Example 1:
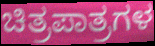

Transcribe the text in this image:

ಚಿತ್ರಪಾತ್ರಗಳ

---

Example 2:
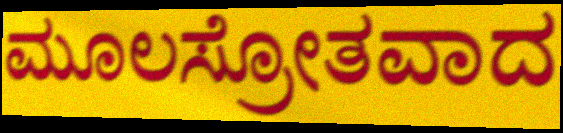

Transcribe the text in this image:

ಮೂಲಸ್ರೋತವಾದ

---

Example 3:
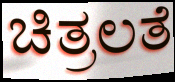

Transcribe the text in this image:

ಚಿತ್ರಲತೆ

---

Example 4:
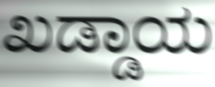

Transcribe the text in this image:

ಖಡ್ಡಾಯ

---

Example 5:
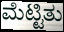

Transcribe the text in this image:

ಮೆಟ್ಟಿತು